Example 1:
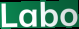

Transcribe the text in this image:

Labo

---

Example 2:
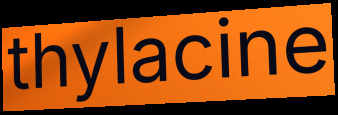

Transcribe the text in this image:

thylacine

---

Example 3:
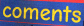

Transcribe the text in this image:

coments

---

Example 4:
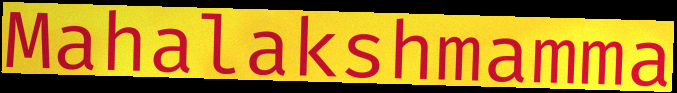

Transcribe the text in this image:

Mahalakshmamma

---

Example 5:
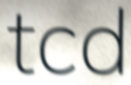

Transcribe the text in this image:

tcd